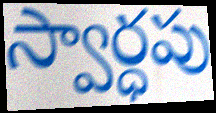
స్వార్ధపు